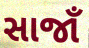
સાજાઁ